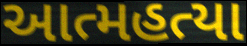
આત્મહત્યા